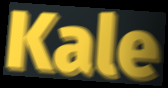
Kale